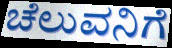
ಚೆಲುವನಿಗೆ